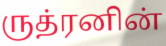
ருத்ரனின்